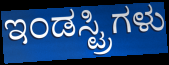
ಇಂಡಸ್ಟ್ರಿಗಳು